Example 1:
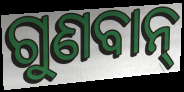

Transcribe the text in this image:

ଗୁଣବାନ୍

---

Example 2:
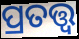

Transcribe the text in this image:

ପ୍ରତତ୍ତ୍ୱ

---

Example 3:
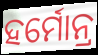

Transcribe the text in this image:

ହର୍ମୋନ୍ର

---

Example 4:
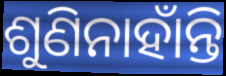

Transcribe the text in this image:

ଶୁଣିନାହାଁନ୍ତି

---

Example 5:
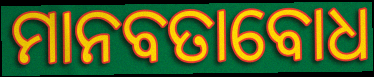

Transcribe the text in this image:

ମାନବତାବୋଧ